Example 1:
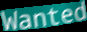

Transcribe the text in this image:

Wanted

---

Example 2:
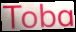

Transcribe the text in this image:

Toba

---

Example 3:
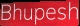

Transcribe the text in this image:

Bhupesh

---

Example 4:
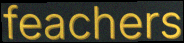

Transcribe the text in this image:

feachers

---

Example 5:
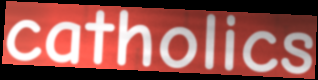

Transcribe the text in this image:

catholics